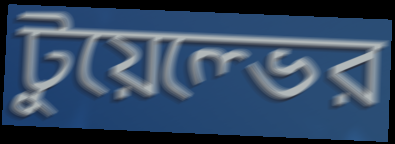
টুয়েল্ভের